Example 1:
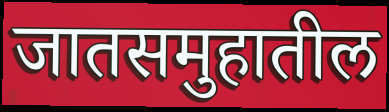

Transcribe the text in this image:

जातसमुहातील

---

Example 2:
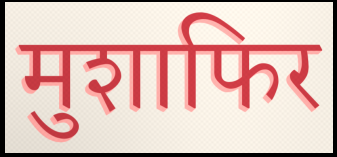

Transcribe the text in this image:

मुशाफिर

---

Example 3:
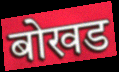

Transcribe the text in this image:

बोखड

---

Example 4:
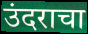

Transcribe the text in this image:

उंदराचा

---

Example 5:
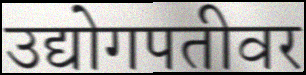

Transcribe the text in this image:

उद्योगपतीवर